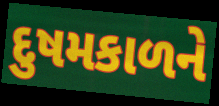
દુષમકાળને